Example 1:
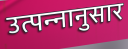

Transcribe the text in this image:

उत्पन्नानुसार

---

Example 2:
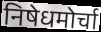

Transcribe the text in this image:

निषेधमोर्चा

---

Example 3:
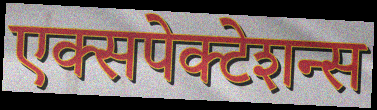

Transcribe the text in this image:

एक्सपेक्टेशन्स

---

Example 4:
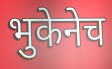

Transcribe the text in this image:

भुकेनेच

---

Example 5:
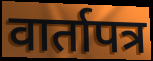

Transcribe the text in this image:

वार्तापत्र